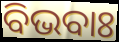
ବିଭବାଃ